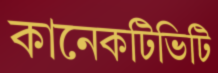
কানেকটিভিটি